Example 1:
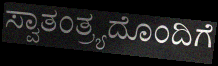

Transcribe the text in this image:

ಸ್ವಾತಂತ್ರ್ಯದೊಂದಿಗೆ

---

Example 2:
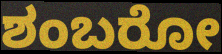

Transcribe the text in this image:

ಶಂಬರೋ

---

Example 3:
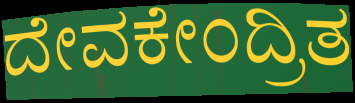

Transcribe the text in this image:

ದೇವಕೇಂದ್ರಿತ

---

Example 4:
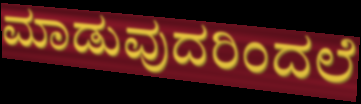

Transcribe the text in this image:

ಮಾಡುವುದರಿಂದಲೆ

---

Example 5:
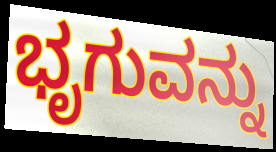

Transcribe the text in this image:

ಭೃಗುವನ್ನು